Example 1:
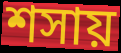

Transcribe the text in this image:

শসায়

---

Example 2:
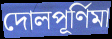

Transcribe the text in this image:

দোলপূর্ণিমা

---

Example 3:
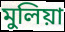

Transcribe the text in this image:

মুলিয়া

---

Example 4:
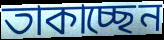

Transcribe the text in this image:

তাকাচ্ছেন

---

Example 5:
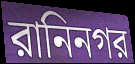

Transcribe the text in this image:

রানিনগর